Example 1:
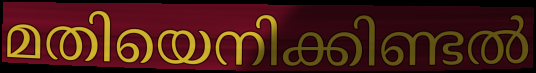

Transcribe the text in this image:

മതിയെനിക്കിണ്ടൽ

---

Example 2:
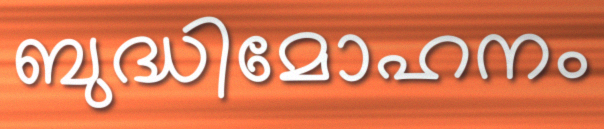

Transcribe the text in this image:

ബുദ്ധിമോഹനം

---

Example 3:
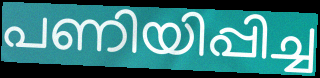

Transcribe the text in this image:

പണിയിപ്പിച്ച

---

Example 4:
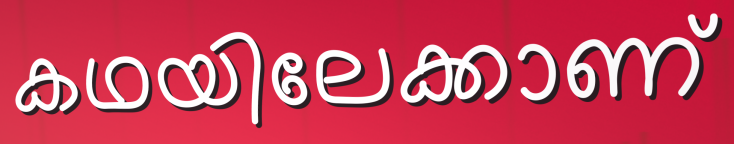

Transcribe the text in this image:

കഥയിലേക്കാണ്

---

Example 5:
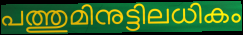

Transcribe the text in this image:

പത്തുമിനുട്ടിലധികം